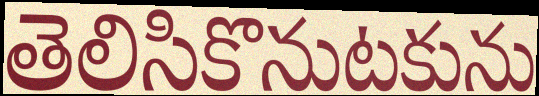
తెలిసికొనుటకును